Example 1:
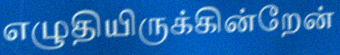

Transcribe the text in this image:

எழுதியிருக்கின்றேன்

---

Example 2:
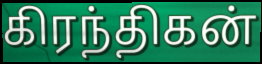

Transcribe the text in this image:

கிரந்திகன்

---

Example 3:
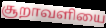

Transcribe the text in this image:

சூறாவளியை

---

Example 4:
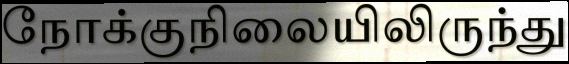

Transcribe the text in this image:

நோக்குநிலையிலிருந்து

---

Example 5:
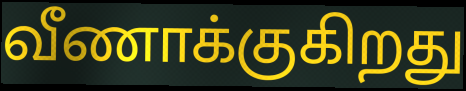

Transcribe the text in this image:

வீணாக்குகிறது